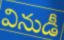
వినుడీ